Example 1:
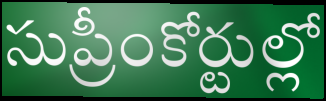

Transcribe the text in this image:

సుప్రీంకోర్టుల్లో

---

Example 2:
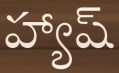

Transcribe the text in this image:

హ్యాష్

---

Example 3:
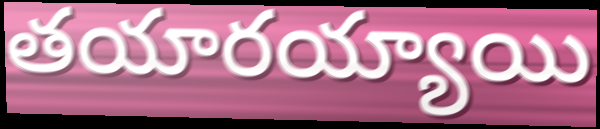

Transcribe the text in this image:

తయారయ్యాయి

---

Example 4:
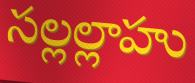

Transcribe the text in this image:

సల్లల్లాహు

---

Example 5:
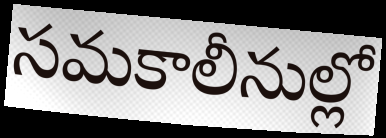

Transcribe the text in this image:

సమకాలీనుల్లో